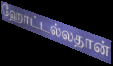
ஹோட்டல்லதான்